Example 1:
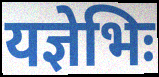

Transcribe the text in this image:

यज्ञेभिः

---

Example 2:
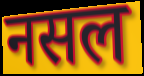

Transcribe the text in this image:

नसल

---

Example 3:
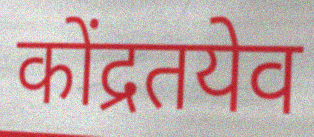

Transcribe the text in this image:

कोंद्रतयेव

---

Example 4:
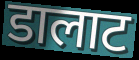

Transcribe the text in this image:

डालाट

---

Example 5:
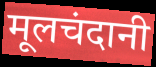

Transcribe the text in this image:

मूलचंदानी